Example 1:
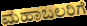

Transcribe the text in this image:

ಮಹಾಬಲರಿಗೆ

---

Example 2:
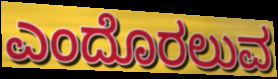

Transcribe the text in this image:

ಎಂದೊರಲುವ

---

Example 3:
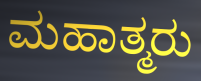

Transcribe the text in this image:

ಮಹಾತ್ಮರು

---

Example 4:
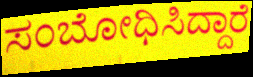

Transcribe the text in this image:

ಸಂಬೋಧಿಸಿದ್ದಾರೆ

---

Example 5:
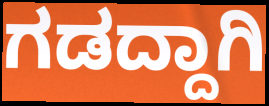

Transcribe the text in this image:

ಗಡದ್ದಾಗಿ